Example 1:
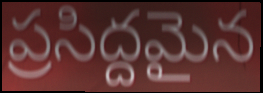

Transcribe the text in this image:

ప్రసిద్దమైన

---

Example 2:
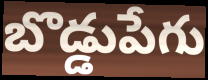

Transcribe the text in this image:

బొడ్డుపేగు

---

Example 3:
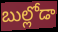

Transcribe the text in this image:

బుల్లోడా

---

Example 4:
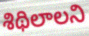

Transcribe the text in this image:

శిథిలాలని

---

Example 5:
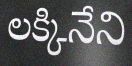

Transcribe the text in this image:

లక్కినేని